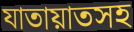
যাতায়াতসহ